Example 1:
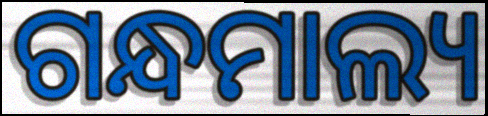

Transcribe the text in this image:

ଗନ୍ଧମାଲ୍ୟ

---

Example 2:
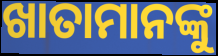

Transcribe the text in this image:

ଖାତାମାନଙ୍କୁ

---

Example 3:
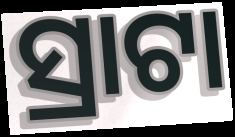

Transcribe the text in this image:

ସ୍ରାଟା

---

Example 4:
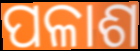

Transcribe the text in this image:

ପଳାଶ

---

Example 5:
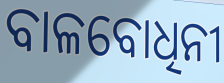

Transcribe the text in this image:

ବାଳବୋଧିନୀ